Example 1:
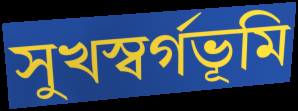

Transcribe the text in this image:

সুখস্বর্গভূমি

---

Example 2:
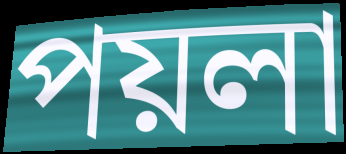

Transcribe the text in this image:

পয়লা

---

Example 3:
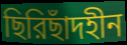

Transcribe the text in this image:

ছিরিছাঁদহীন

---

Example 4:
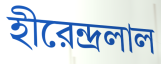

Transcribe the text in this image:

হীরেন্দ্রলাল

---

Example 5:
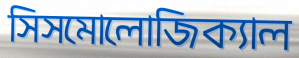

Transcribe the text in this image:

সিসমোলোজিক্যাল